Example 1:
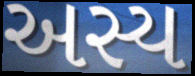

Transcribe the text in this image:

અસ્ય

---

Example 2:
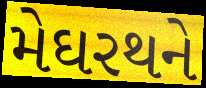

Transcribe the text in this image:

મેઘરથને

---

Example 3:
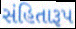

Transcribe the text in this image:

સંહિતારૂપ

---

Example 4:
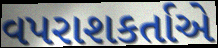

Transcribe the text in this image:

વપરાશકર્તાએ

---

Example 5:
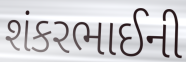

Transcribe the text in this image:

શંકરભાઈની